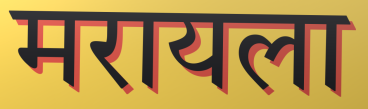
मरायला